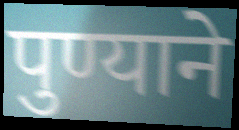
पुण्याने